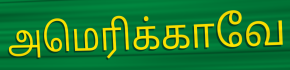
அமெரிக்காவே